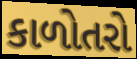
કાળોતરો